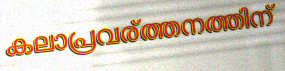
കലാപ്രവര്ത്തനത്തിന്